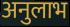
अनुलाभ